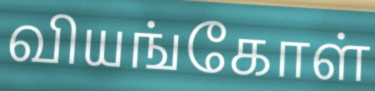
வியங்கோள்